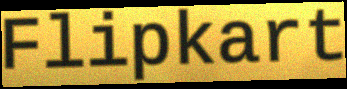
Flipkart